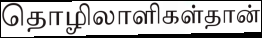
தொழிலாளிகள்தான்